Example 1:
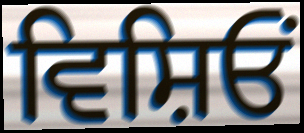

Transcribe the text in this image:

ਵਿਸ਼ਿਓਂ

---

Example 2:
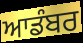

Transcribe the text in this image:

ਆਡੰਬਰ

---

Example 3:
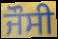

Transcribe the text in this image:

ਜੌਸੀ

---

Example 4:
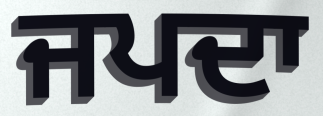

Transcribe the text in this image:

ਜਪਦਾ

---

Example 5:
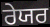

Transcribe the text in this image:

ਰੇਯਰ